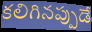
కలిగినప్పుడే